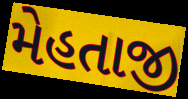
મેહતાજી